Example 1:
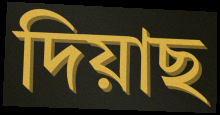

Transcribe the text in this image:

দিয়াছ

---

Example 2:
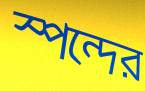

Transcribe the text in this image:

স্পন্দের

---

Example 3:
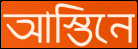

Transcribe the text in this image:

আস্তিনে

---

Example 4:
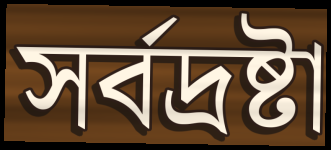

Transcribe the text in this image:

সর্বদ্রষ্টা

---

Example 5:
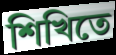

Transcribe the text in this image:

শিখিতে